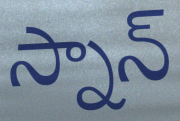
స్నాన్